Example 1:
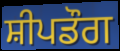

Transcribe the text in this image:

ਸ਼ੀਪਡੌਗ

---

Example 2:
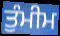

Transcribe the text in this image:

ਤੁੰਮੀਮ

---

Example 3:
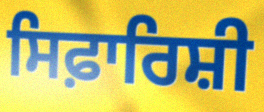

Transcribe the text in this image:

ਸਿਫ਼ਾਰਿਸ਼ੀ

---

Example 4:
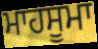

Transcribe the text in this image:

ਮਾਹਸੂਮਾ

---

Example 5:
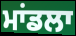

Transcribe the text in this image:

ਮਾਂਡਲਾ